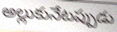
అల్లుకునేటప్పుడు